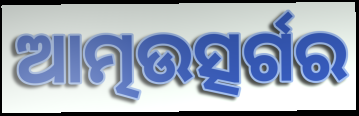
ଆତ୍ମଉତ୍ସର୍ଗର